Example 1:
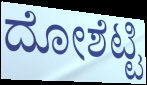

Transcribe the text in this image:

ದೋಶೆಟ್ಟಿ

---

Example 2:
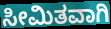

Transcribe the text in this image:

ಸೀಮಿತವಾಗಿ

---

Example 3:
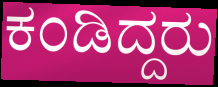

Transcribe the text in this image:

ಕಂಡಿದ್ದರು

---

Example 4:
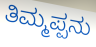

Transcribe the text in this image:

ತಿಮ್ಮಪ್ಪನು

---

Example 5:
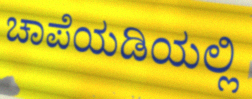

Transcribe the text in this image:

ಚಾಪೆಯಡಿಯಲ್ಲಿ